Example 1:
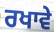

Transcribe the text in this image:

ਰਖਾਵੇ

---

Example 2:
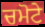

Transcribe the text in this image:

ਚਮੋਟੇ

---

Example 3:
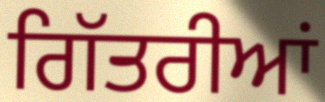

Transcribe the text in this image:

ਗਿੱਤਰੀਆਂ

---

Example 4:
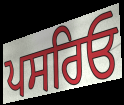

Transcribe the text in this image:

ਪਸਰਿਓ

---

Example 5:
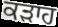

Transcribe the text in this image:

ਕੜਾਹ